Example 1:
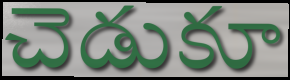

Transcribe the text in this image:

చెడుకూ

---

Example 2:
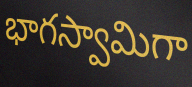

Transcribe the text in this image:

భాగస్వామిగా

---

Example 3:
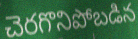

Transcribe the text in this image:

చెరగొనిపోబడిన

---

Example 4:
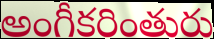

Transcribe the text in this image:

అంగీకరింతురు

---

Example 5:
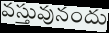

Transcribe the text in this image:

వస్తువునందు